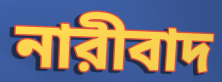
নারীবাদ